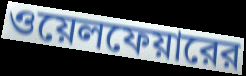
ওয়েলফেয়ারের